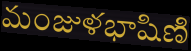
మంజుళభాషిణి